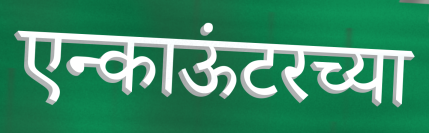
एन्काऊंटरच्या